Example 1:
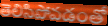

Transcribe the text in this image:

తెలిసిపోవడంతో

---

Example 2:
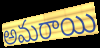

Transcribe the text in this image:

అమరాయి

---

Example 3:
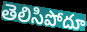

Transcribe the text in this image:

తెలిసిపోదూ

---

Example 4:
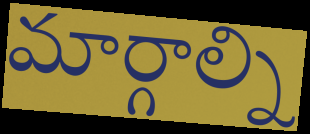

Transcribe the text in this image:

మార్గాల్ని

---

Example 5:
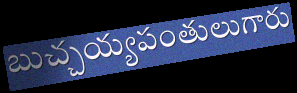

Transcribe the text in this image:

బుచ్చయ్యపంతులుగారు